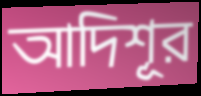
আদিশূর